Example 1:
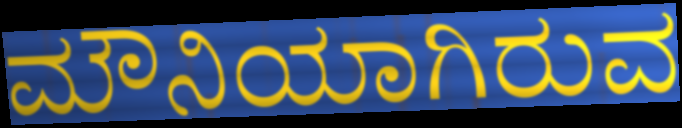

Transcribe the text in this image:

ಮೌನಿಯಾಗಿರುವ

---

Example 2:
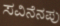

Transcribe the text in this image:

ಸವಿನೆನಪು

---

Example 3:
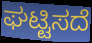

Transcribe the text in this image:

ಘಟ್ಟಿಸದೆ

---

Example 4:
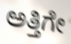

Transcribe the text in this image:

ಅತ್ತಿಗೇ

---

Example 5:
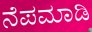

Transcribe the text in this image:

ನೆಪಮಾಡಿ